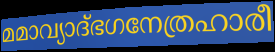
മമാവ്യാദ്ഭഗനേത്രഹാരീ